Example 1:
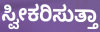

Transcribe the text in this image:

ಸ್ವೀಕರಿಸುತ್ತಾ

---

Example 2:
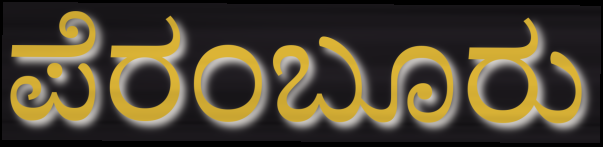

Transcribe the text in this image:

ಪೆರಂಬೂರು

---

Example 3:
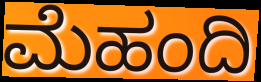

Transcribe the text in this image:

ಮೆಹಂದಿ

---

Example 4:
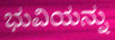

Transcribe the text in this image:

ಭುವಿಯನ್ನು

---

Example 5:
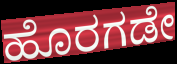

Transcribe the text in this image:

ಹೊರಗಡೇ